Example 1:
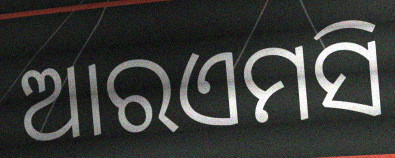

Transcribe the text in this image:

ଆରଏମସି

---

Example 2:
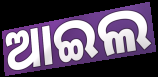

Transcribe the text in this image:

ଆଇଲ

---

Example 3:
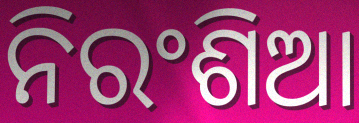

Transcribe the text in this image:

ନିରଂଶିଆ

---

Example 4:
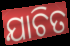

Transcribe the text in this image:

ଯାଚିତ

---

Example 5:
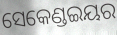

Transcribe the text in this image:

ସେକେଣ୍ଡଇୟର